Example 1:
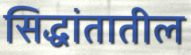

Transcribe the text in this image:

सिद्धांतातील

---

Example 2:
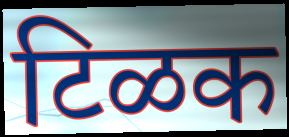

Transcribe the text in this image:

टिळक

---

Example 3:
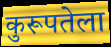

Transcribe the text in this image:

कुरूपतेला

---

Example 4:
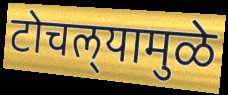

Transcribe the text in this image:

टोचल्यामुळे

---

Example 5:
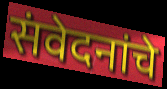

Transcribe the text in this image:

संवेदनांचे